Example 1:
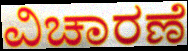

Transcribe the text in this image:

ವಿಚಾರಣೆ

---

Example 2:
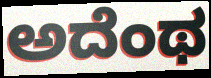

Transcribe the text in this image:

ಅದೆಂಥ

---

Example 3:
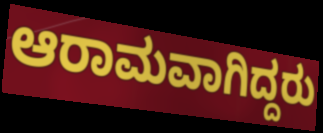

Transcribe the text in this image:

ಆರಾಮವಾಗಿದ್ದರು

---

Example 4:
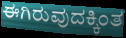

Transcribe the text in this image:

ಈಗಿರುವುದಕ್ಕಿಂತ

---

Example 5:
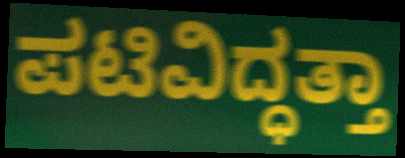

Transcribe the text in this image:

ಪಟಿವಿದ್ಧತ್ತಾ